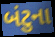
બંટુના